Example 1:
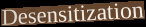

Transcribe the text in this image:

Desensitization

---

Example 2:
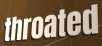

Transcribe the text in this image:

throated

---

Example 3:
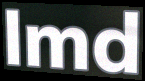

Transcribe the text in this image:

Imd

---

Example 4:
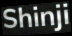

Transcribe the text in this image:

Shinji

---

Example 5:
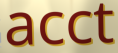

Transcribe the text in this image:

acct